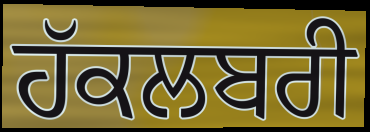
ਹੱਕਲਬਰੀ